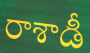
రాశాడీ